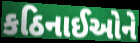
કઠિનાઈઓને